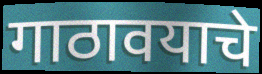
गाठावयाचे